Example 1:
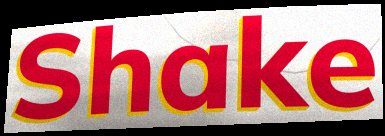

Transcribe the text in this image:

Shake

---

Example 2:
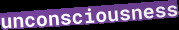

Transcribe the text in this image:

unconsciousness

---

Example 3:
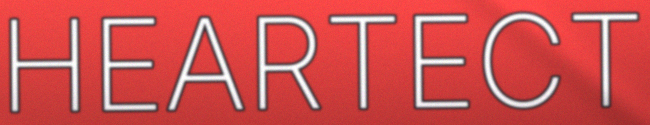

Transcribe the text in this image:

HEARTECT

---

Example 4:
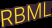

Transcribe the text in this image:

RBML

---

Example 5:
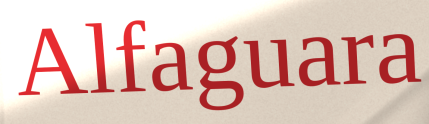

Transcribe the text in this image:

Alfaguara